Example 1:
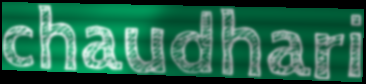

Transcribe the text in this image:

chaudhari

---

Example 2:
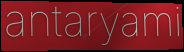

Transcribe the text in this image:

antaryami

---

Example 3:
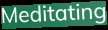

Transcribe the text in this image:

Meditating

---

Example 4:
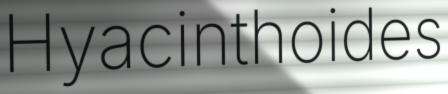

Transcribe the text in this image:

Hyacinthoides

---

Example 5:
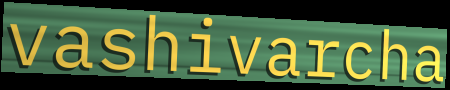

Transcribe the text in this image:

vashivarcha